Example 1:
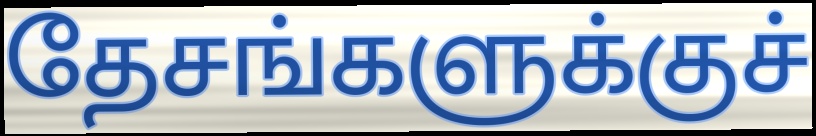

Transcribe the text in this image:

தேசங்களுக்குச்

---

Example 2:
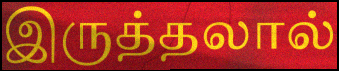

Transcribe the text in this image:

இருத்தலால்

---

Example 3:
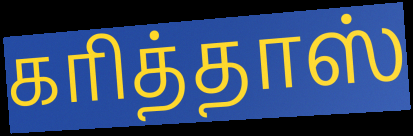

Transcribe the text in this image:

கரித்தாஸ்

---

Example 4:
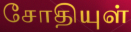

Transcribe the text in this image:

சோதியுள்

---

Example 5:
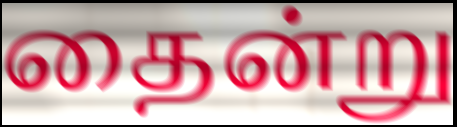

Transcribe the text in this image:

தைன்று